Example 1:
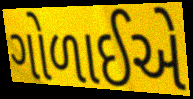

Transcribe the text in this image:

ગોળાઈએ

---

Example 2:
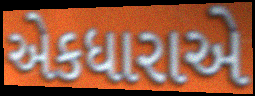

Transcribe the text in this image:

એકધારાએ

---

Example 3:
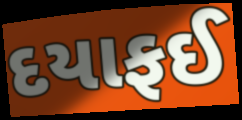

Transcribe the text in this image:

દયાફઈ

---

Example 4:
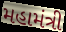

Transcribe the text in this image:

મહામંત્રી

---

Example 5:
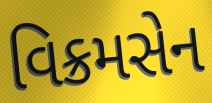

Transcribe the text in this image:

વિક્રમસેન